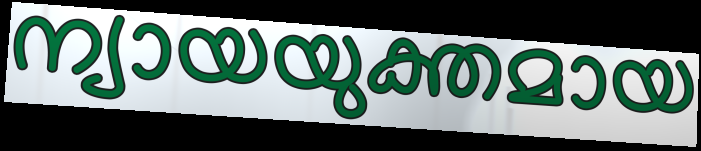
ന്യായയുക്തമായ